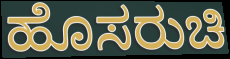
ಹೊಸರುಚಿ